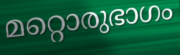
മറ്റൊരുഭാഗം